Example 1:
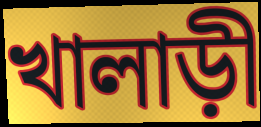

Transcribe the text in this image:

খালাড়ী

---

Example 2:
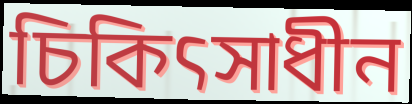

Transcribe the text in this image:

চিকিৎসাধীন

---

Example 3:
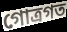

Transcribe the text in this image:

গোত্রগত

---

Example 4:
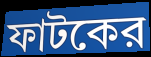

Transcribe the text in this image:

ফাটকের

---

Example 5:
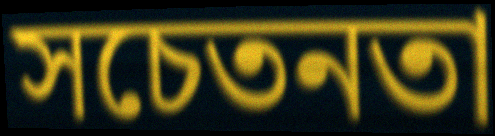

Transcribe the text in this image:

সচেতনতা